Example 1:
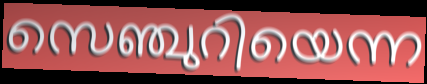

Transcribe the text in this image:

സെഞ്ചുറിയെന്ന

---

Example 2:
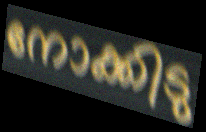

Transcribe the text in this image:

നോക്കിടു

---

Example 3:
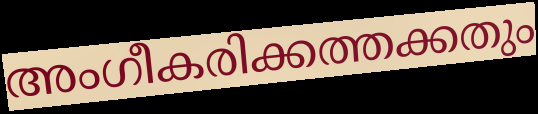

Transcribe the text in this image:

അംഗീകരിക്കത്തക്കതും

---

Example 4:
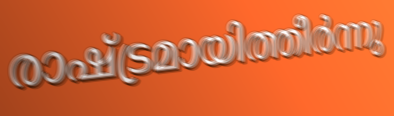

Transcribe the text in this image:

രാഷ്ട്രമായിത്തീർന്നു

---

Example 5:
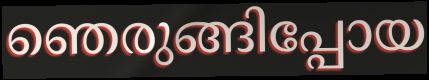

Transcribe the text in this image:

ഞെരുങ്ങിപ്പോയ